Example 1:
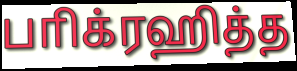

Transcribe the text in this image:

பரிக்ரஹித்த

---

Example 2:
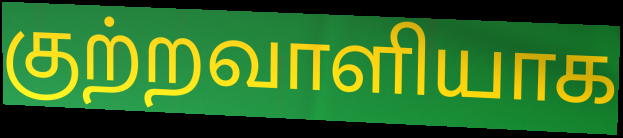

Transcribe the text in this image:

குற்றவாளியாக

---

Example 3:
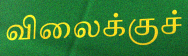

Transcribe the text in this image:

விலைக்குச்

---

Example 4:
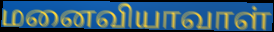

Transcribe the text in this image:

மனைவியாவாள்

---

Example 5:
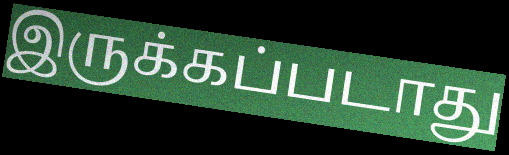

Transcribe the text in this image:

இருக்கப்படாது